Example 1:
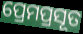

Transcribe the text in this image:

ପ୍ରେମପ୍ରସୂତ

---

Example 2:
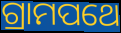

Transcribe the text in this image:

ଗ୍ରାମପଥେ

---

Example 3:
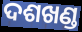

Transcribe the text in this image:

ଦଶଖଣ୍ଡ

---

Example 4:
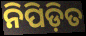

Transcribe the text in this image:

ନିପିଡ଼ିତ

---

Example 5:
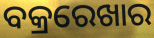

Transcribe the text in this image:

ବକ୍ରରେଖାର